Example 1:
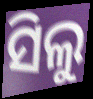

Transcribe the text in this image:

ସିଲୁ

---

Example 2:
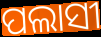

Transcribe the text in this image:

ପଲାସୀ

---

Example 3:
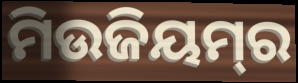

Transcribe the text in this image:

ମିଉଜିୟମ୍‌ର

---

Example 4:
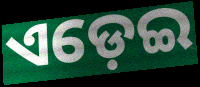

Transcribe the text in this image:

ଏଡ଼େଇ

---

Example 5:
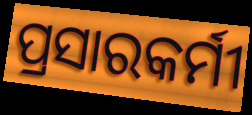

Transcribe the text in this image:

ପ୍ରସାରକର୍ମୀ